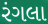
રંગલા